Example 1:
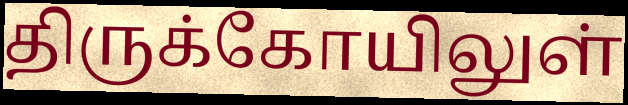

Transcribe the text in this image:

திருக்கோயிலுள்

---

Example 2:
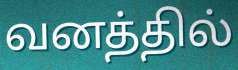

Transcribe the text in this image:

வனத்தில்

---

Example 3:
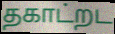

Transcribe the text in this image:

தகாட்றட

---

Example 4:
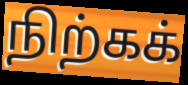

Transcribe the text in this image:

நிற்கக்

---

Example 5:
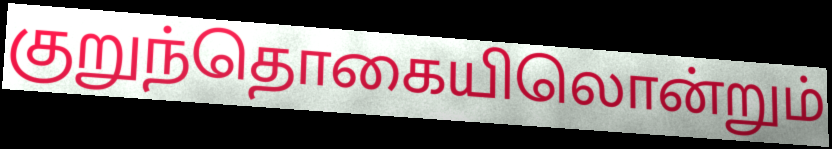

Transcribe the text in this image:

குறுந்தொகையிலொன்றும்